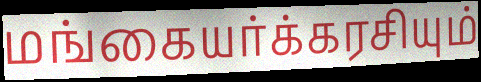
மங்கையர்க்கரசியும்